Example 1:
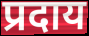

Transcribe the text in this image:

प्रदाय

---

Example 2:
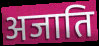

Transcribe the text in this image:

अजाति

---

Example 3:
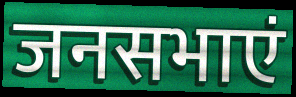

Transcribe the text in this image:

जनसभाएं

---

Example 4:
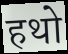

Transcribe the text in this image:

हथो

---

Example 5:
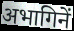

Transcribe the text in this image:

अभागिनें